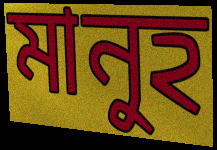
মানুহ